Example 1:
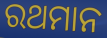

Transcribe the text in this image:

ରଥମାନ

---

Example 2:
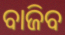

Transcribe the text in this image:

ବାଜିବ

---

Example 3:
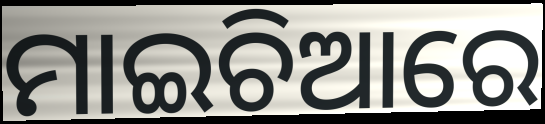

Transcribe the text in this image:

ମାଇଚିଆରେ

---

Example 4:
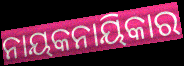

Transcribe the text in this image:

ନାୟକନାୟିକାର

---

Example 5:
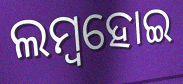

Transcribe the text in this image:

ଲମ୍ୱହୋଇ